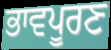
ਭਾਵਪੂਰਣ